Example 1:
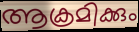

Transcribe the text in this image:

ആക്രമിക്കും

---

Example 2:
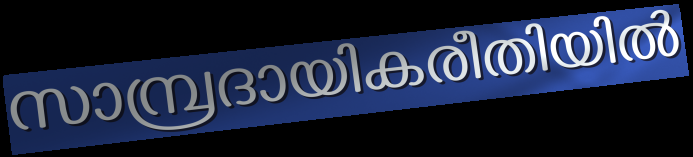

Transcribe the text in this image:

സാമ്പ്രദായികരീതിയിൽ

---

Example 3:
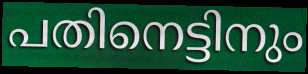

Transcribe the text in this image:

പതിനെട്ടിനും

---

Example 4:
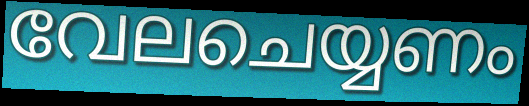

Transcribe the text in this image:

വേലചെയ്യണം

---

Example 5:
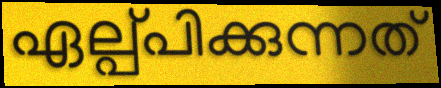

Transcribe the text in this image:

ഏല്പ്പിക്കുന്നത്